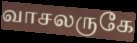
வாசலருகே